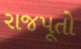
રાજપૂતો